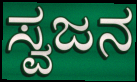
ಸ್ವಜನ